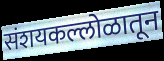
संशयकल्लोळातून